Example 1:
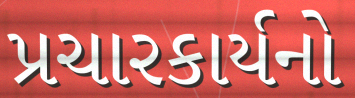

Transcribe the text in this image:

પ્રચારકાર્યનો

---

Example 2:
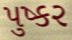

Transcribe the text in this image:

પુષ્કર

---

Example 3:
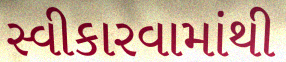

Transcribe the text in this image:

સ્વીકારવામાંથી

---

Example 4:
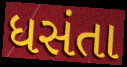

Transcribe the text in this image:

ધસંતા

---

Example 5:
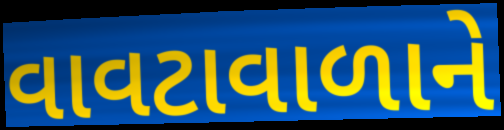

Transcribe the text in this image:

વાવટાવાળાને